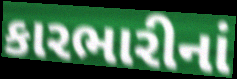
કારભારીનાં